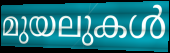
മുയലുകൾ